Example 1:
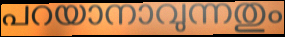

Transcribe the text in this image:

പറയാനാവുന്നതും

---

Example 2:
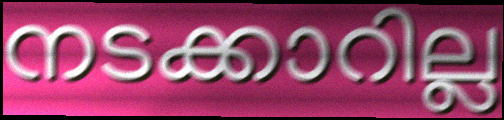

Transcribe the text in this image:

നടക്കാറില്ല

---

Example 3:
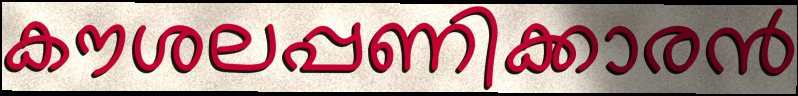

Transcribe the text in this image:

കൗശലപ്പണിക്കാരൻ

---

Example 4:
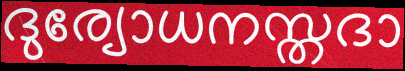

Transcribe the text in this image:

ദുര്യോധനസ്തദാ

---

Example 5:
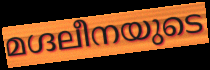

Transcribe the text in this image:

മഗ്ദലീനയുടെ